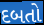
દબતો